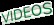
VIDEOS